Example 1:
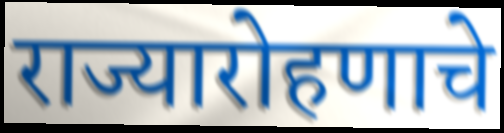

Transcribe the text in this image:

राज्यारोहणाचे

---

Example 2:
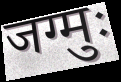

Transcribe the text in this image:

जग्मुः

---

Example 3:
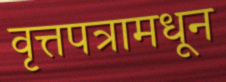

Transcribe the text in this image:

वृत्तपत्रामधून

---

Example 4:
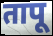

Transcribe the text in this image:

तापू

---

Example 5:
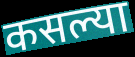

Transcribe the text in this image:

कसल्या